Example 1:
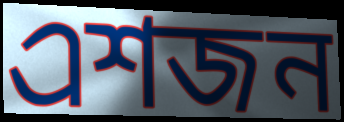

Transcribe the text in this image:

এশজন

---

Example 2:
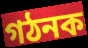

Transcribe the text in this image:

গঠনক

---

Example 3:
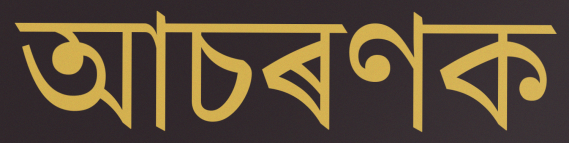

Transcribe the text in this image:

আচৰণক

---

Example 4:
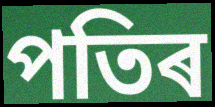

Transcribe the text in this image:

পতিৰ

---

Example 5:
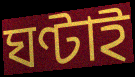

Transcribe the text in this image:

ঘণ্টাই